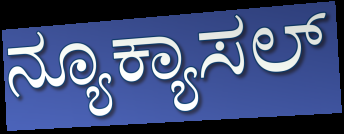
ನ್ಯೂಕ್ಯಾಸಲ್